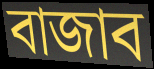
বাজাব